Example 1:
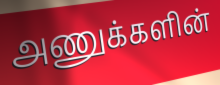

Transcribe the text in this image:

அணுக்களின்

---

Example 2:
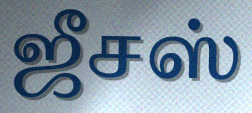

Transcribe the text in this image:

ஜீசஸ்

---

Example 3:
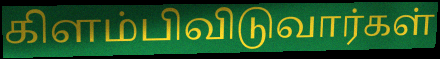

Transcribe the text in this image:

கிளம்பிவிடுவார்கள்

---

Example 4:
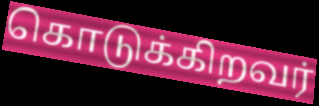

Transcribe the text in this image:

கொடுக்கிறவர்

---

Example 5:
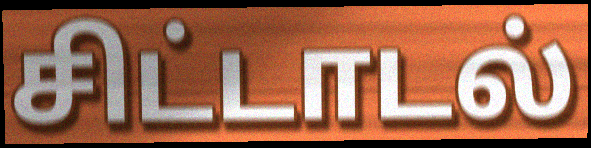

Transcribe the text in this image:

சிட்டாடல்